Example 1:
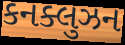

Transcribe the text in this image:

કનક્લુઝન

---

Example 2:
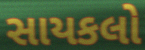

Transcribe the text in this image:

સાયકલો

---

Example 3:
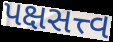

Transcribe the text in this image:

પક્ષસત્ત્વ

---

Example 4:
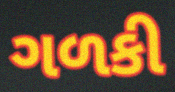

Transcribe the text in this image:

ગળકી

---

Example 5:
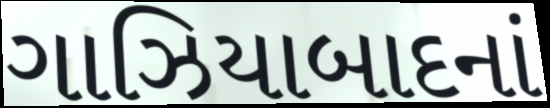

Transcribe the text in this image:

ગાઝિયાબાદનાં